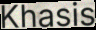
Khasis